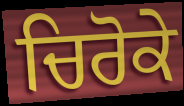
ਚਿਰੋਕੇ